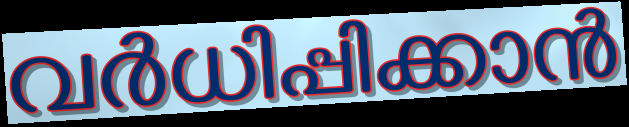
വർധിപ്പിക്കാൻ